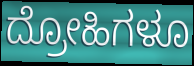
ದ್ರೋಹಿಗಳೂ